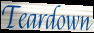
Teardown